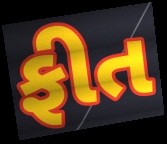
ફીત